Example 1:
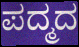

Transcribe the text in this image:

ಪದ್ಮದ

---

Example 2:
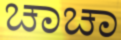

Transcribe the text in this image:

ಚಾಚಾ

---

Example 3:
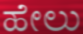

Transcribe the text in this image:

ಹೇಲು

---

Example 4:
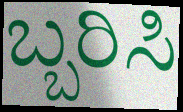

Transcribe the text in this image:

ಬ್ಬರಿಸಿ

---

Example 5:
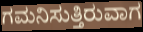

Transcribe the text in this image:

ಗಮನಿಸುತ್ತಿರುವಾಗ